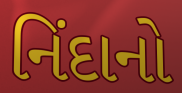
નિંદાનો